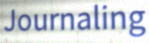
Journaling